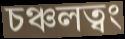
চঞ্চলত্বং